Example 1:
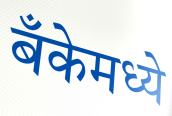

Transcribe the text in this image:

बँकेमध्ये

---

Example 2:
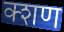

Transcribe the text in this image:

क्शण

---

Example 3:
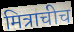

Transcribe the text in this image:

मित्राचीच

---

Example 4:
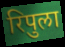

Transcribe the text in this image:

रिपुला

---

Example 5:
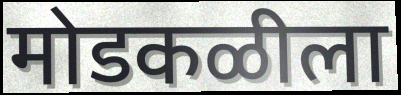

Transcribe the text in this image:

मोडकळीला